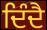
ਦਿੰਦੈ